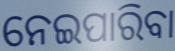
ନେଇପାରିବା